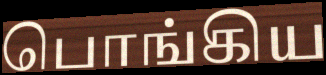
பொங்கிய